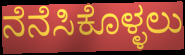
ನೆನೆಸಿಕೊಳ್ಳಲು